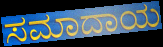
ಸಮಾದಾಯ